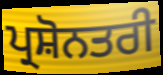
ਪ੍ਰਸ਼ੋਨਤਰੀ